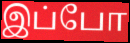
இப்போ